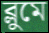
ব্লুমে